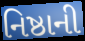
નિષ્ઠાની